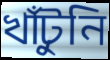
খাঁটুনি